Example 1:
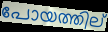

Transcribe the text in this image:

പോയത്തില്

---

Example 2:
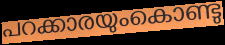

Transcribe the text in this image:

പറക്കാരയുംകൊണ്ടു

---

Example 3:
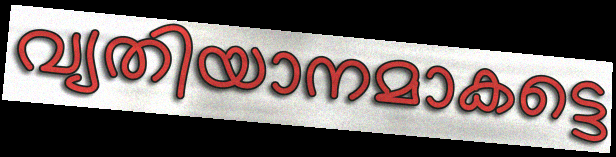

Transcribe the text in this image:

വ്യതിയാനമാകട്ടെ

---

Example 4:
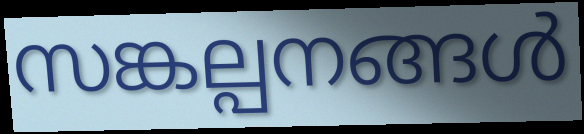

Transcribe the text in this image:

സങ്കല്പനങ്ങൾ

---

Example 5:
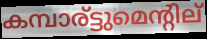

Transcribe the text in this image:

കമ്പാര്ട്ടുമെന്റില്